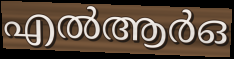
എൽആർഒ